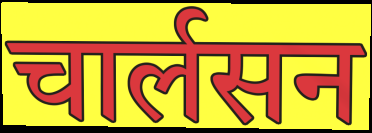
चार्लसन